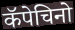
कॅपेचिनो